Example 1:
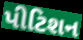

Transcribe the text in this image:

પીટિશન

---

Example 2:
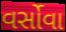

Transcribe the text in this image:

વર્સોવા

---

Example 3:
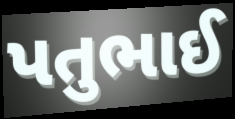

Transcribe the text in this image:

પતુભાઈ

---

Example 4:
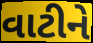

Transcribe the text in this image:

વાટીને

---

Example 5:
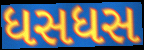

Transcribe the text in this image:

ધસધસ